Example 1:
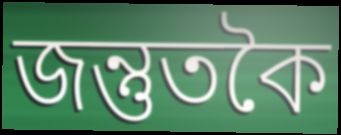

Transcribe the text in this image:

জন্তুতকৈ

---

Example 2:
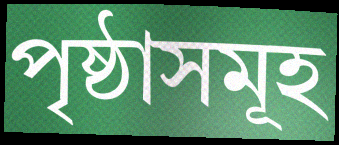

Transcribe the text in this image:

পৃষ্ঠাসমূহ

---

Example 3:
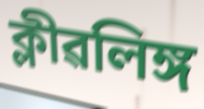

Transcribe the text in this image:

ক্লীৱলিঙ্গ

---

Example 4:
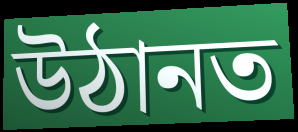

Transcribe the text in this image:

উঠানত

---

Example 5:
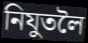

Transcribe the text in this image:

নিযুতলৈ